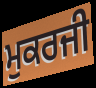
ਮੁਕਰਜੀ